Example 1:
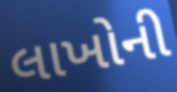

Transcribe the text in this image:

લાખોની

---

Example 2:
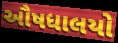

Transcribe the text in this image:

ઔષધાલયો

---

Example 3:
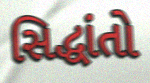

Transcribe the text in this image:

સિદ્ધાંતો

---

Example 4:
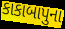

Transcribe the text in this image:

કાકાબાપુના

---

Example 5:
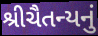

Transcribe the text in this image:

શ્રીચૈતન્યનું